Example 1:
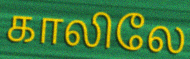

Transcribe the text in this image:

காலிலே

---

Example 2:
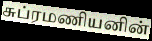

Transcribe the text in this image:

சுப்ரமணியனின்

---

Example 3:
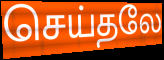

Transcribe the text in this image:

செய்தலே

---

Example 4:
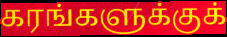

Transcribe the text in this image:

கரங்களுக்குக்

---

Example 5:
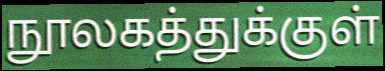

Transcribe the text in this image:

நூலகத்துக்குள்